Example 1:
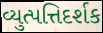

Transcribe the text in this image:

વ્યુત્પત્તિદર્શક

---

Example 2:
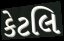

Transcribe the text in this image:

કેટલિ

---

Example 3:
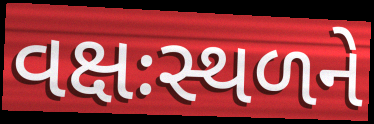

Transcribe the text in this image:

વક્ષઃસ્થળને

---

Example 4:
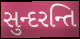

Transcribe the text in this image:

સુન્દરન્તિ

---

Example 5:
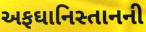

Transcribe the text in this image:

અફઘાનિસ્તાનની